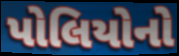
પોલિયોનો